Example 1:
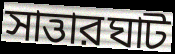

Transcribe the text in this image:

সাত্তারঘাট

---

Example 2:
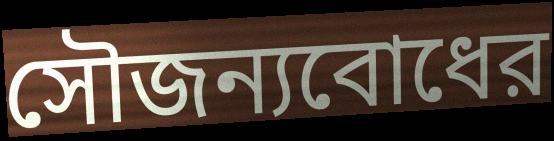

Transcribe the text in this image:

সৌজন্যবোধের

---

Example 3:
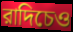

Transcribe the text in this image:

রাদিচেও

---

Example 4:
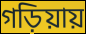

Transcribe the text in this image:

গড়িয়ায়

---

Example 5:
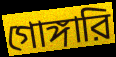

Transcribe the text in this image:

গোঙ্গারি